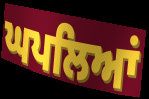
ਘਪਲਿਆਂ